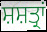
ਸ਼ਸ਼ਤ੍ਰਾਂ